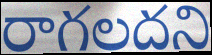
రాగలదని